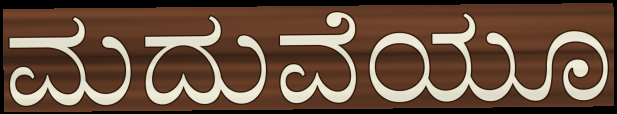
ಮದುವೆಯೂ